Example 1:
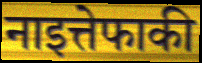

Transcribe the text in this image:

नाइत्तेफाकी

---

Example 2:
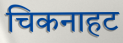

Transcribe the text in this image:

चिकनाहट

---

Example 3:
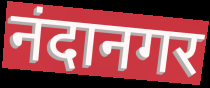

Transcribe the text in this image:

नंदानगर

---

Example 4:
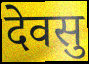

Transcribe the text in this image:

देवसु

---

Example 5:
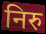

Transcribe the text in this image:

निरु